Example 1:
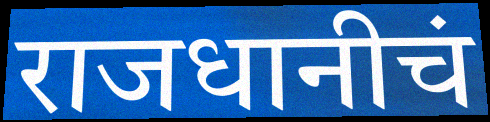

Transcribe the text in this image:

राजधानीचं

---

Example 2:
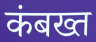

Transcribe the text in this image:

कंबख्त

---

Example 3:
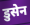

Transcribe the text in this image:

डुसेन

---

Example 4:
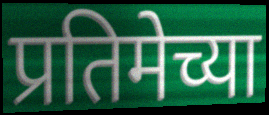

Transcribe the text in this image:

प्रतिमेच्या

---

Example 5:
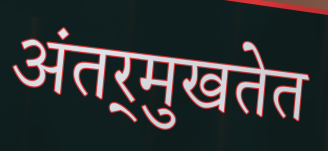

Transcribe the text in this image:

अंतर्मुखतेत